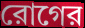
রোগের